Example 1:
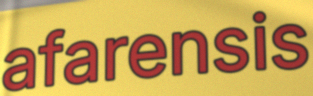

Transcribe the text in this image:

afarensis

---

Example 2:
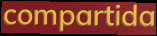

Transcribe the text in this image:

compartida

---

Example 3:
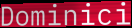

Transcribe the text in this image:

Dominici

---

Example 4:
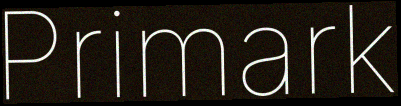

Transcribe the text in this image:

Primark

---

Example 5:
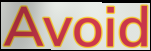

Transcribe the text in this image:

Avoid